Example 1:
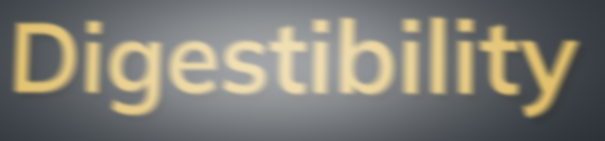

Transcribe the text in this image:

Digestibility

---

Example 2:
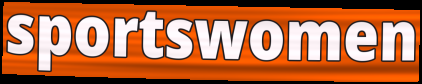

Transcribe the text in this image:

sportswomen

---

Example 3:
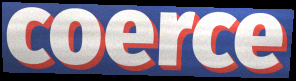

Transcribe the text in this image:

coerce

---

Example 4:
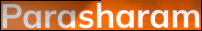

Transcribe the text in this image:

Parasharam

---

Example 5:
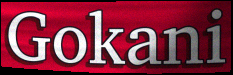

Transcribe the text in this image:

Gokani